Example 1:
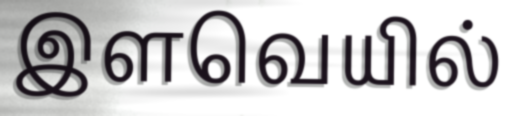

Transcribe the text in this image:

இளவெயில்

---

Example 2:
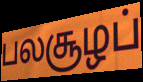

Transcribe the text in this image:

பலசூழப்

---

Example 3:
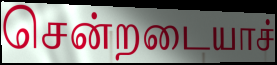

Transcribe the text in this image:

சென்றடையாச்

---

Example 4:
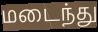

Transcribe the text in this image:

மடைந்து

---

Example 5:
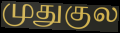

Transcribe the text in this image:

முதுகுல